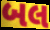
બલ